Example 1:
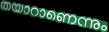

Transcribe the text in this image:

തയാറാണെന്നും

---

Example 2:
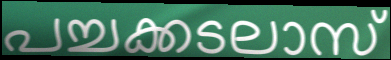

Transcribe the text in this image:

പച്ചക്കടലാസ്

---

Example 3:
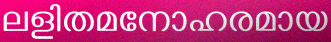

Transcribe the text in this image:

ലളിതമനോഹരമായ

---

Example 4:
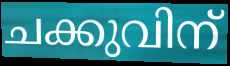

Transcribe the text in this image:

ചക്കുവിന്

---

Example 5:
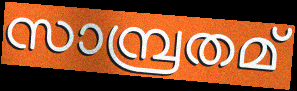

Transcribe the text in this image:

സാമ്പ്രതമ്